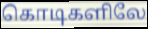
கொடிகளிலே